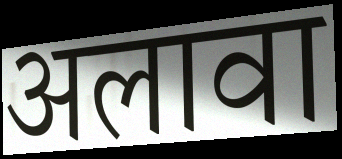
अलावा